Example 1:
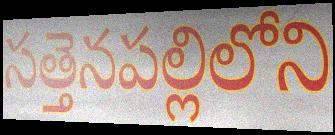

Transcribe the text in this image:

సత్తెనపల్లిలోని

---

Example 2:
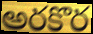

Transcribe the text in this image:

అరకొర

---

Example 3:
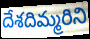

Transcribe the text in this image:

దేశదిమ్మరిని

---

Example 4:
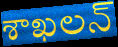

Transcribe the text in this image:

శాఖలన్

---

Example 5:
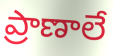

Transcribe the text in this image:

ప్రాణాలే